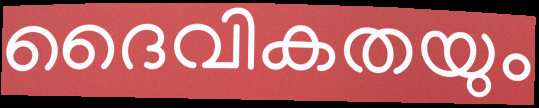
ദൈവികതയും